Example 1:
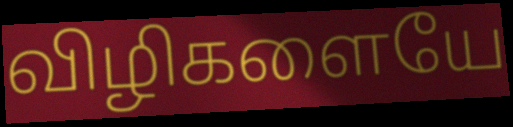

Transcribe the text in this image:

விழிகளையே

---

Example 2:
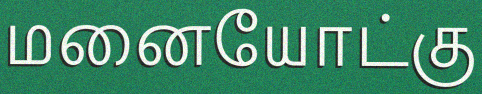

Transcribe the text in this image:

மனையோட்கு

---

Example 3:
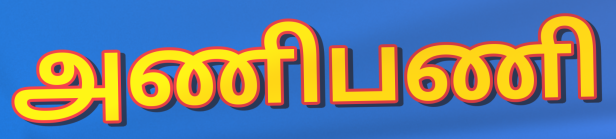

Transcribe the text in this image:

அணிபணி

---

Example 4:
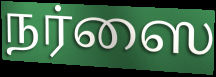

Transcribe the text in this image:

நர்ஸை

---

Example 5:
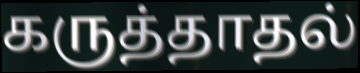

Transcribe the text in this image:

கருத்தாதல்